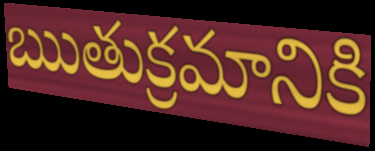
ఋతుక్రమానికి